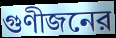
গুণীজনের